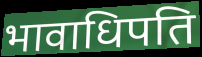
भावाधिपति